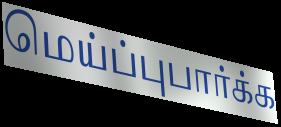
மெய்ப்புபார்க்க